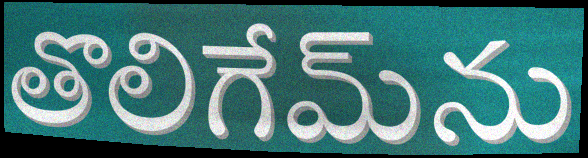
తొలిగేమ్‌ను